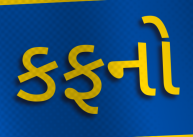
કફનો